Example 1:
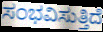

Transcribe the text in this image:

ಸಂಭವಿಸುತ್ತಿದೆ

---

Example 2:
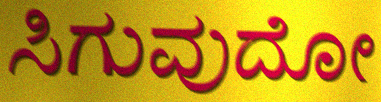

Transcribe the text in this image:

ಸಿಗುವುದೋ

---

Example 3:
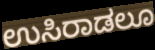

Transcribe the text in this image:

ಉಸಿರಾಡಲೂ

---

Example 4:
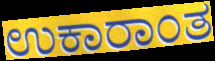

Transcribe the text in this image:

ಉಕಾರಾಂತ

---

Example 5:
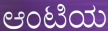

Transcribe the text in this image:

ಆಂಟಿಯ